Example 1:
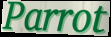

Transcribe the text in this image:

Parrot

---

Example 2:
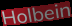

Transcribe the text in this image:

Holbein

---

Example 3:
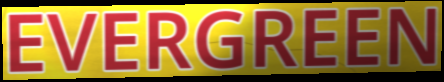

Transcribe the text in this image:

EVERGREEN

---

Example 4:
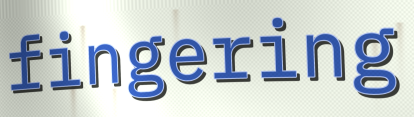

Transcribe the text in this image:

fingering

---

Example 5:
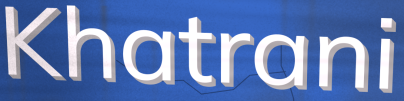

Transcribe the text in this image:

Khatrani